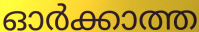
ഓർക്കാത്ത